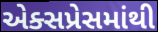
એક્સપ્રેસમાંથી